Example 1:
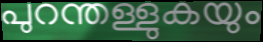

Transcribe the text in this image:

പുറന്തള്ളുകയും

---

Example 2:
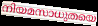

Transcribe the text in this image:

നിയമസാധുതയെ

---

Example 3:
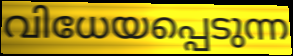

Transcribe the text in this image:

വിധേയപ്പെടുന്ന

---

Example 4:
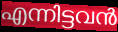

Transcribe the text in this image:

എന്നിട്ടവൻ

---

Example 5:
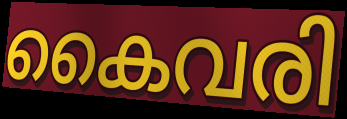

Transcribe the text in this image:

കൈവരി